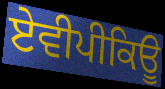
ਏਵੀਪੀਕਿਊ